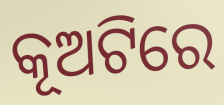
କୂଅଟିରେ